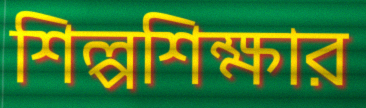
শিল্পশিক্ষার